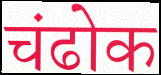
चंढोक